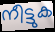
നീട്ടുക